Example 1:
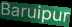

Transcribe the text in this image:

Baruipur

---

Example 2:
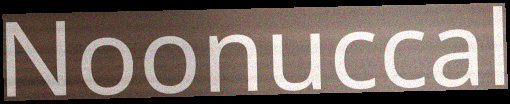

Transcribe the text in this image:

Noonuccal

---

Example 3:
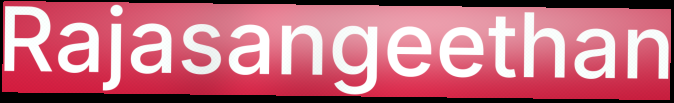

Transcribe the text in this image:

Rajasangeethan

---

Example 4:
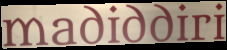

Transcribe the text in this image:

madiddiri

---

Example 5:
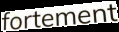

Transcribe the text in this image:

fortement